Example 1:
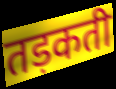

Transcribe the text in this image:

तड़कती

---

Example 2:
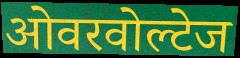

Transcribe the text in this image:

ओवरवोल्टेज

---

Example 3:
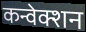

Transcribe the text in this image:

कन्वेक्शन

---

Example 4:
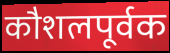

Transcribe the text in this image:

कौशलपूर्वक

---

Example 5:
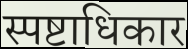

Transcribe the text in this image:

स्पष्टाधिकार